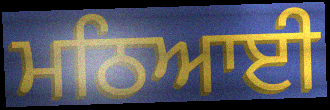
ਮਠਿਆਈ